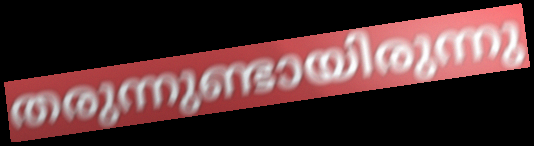
തരുന്നുണ്ടായിരുന്നു